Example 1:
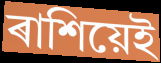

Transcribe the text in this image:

ৰাশিয়েই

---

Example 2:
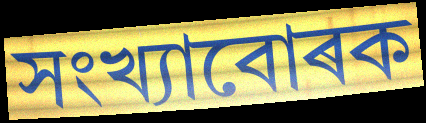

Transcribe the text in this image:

সংখ্যাবোৰক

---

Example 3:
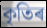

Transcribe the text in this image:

কৃতিৰ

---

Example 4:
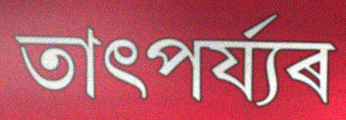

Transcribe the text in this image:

তাৎপৰ্য্যৰ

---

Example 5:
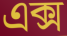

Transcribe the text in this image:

এক্স